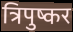
त्रिपुष्कर